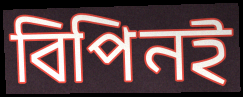
বিপিনই